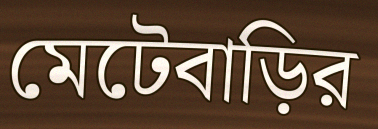
মেটেবাড়ির